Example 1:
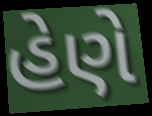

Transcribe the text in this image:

હેણે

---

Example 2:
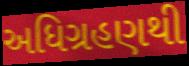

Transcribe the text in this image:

અધિગ્રહણથી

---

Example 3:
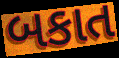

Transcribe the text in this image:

બકાત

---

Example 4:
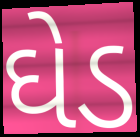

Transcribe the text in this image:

ઘેડ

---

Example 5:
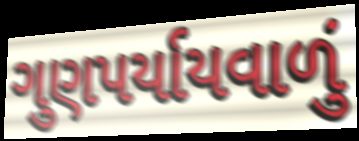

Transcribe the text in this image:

ગુણપર્યાયવાળું